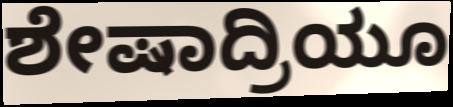
ಶೇಷಾದ್ರಿಯೂ